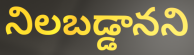
నిలబడ్డానని